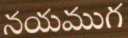
నయముగ